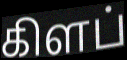
கிளப்